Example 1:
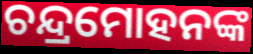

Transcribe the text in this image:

ଚନ୍ଦ୍ରମୋହନଙ୍କ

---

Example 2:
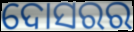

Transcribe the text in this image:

ଦୋସରର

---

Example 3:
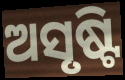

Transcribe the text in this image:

ଅସୃଷ୍ଟି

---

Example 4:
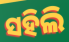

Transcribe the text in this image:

ସହିଲି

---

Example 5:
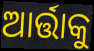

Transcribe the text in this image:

ଆର୍ତ୍ତାକୁ